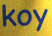
koy